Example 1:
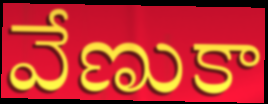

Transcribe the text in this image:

వేణుకా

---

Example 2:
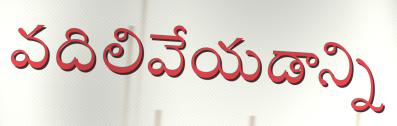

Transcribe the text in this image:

వదిలివేయడాన్ని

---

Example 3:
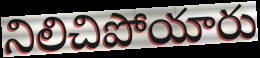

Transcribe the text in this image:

నిలిచిపోయారు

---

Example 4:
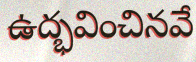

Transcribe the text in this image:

ఉద్భవించినవే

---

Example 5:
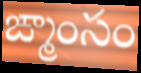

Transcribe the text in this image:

ఙ్మాంసం